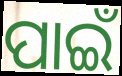
ପାଇଁ